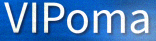
VIPoma